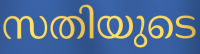
സതിയുടെ